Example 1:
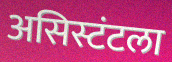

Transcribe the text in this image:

असिस्टंटला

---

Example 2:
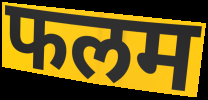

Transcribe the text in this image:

फलम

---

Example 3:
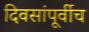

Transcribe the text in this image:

दिवसांपूर्वीच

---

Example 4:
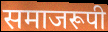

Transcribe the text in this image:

समाजरूपी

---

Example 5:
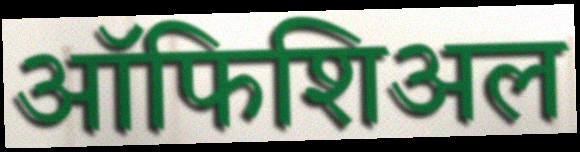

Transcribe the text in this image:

ऑफिशिअल